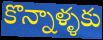
కొన్నాళ్ళకు